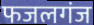
फजलगंज